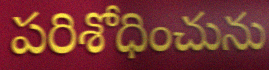
పరిశోధించును